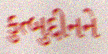
કુત્બુદ્દીનને